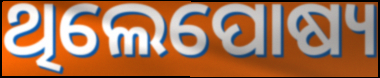
ଥିଲେପୋଷ୍ୟ